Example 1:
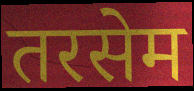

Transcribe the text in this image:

तरसेम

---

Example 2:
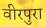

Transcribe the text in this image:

वीरपुरा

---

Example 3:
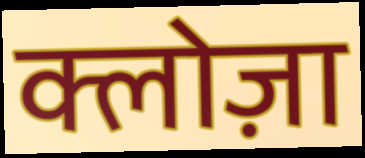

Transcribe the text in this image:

क्लोज़ा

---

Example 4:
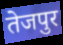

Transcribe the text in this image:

तेजपुर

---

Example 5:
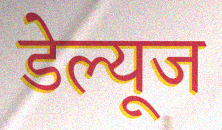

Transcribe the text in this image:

डेल्यूज